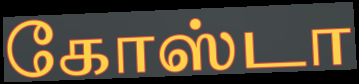
கோஸ்டா